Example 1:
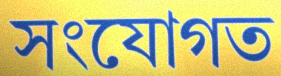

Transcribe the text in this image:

সংযোগত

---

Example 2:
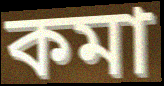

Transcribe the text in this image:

কমা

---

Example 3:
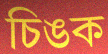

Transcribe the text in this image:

চিঙক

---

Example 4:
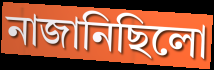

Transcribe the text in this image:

নাজানিছিলো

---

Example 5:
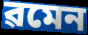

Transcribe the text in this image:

ৱমেন